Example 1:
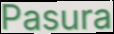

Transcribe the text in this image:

Pasura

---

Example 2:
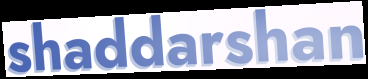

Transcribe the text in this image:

shaddarshan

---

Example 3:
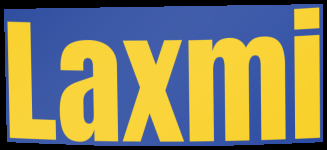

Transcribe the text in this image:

Laxmi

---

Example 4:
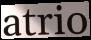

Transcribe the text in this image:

atrio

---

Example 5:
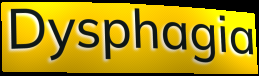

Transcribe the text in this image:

Dysphagia